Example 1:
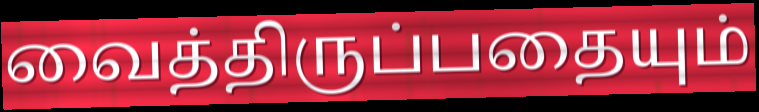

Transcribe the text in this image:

வைத்திருப்பதையும்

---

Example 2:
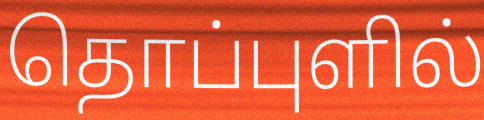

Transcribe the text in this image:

தொப்புளில்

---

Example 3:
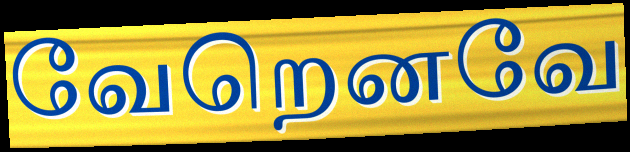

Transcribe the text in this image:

வேறெனவே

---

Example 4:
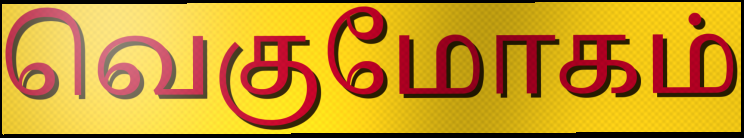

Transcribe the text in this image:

வெகுமோகம்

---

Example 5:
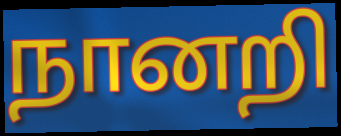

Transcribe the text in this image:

நானறி